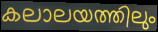
കലാലയത്തിലും